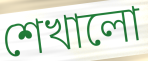
শেখালো